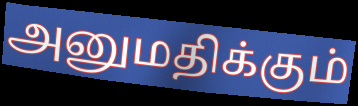
அனுமதிக்கும்